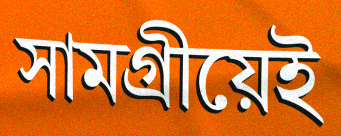
সামগ্ৰীয়েই